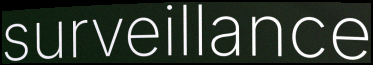
surveillance